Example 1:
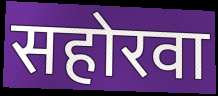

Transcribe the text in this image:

सहोरवा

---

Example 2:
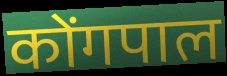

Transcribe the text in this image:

कोंगपाल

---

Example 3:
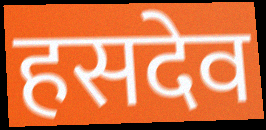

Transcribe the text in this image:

हसदेव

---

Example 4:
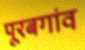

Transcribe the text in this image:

पूरबगांव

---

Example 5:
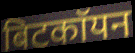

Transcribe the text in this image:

बिटकॉयन